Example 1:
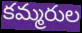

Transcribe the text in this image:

కమ్మరుల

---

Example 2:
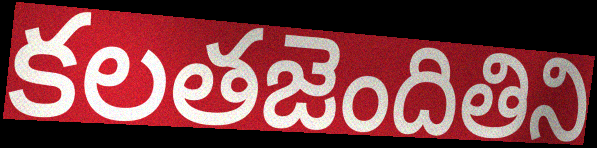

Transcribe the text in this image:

కలతజెందితిని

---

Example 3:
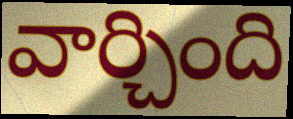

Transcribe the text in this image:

వార్చింది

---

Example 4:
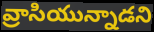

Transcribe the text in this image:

వ్రాసియున్నాడని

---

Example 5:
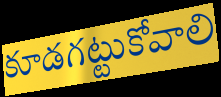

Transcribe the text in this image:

కూడగట్టుకోవాలి